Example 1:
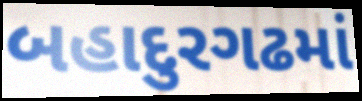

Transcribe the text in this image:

બહાદુરગઢમાં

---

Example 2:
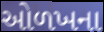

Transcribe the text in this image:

ઓળખના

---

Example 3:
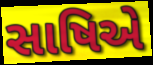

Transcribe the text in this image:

સાષિએ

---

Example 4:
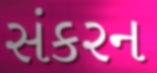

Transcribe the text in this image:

સંકરન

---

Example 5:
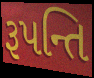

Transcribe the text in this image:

રૂપન્તિ